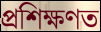
প্ৰশিক্ষণত